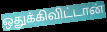
ஒதுக்கிவிட்டான்